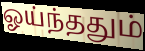
ஓய்ந்ததும்